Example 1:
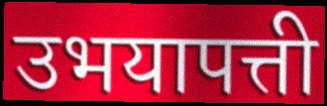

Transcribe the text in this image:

उभयापत्ती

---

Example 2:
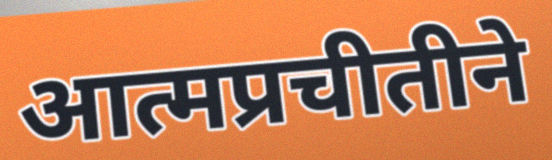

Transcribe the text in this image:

आत्मप्रचीतीने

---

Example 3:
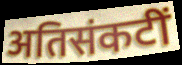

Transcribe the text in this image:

अतिसंकटीं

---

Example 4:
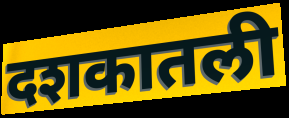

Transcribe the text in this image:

दशकातली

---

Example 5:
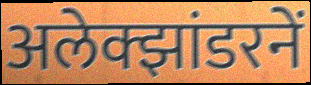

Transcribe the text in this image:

अलेक्झांडरनें